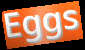
Eggs